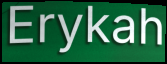
Erykah